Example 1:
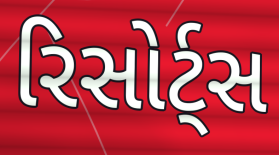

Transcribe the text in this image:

રિસોર્ટ્સ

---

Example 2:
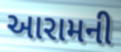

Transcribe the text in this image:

આરામની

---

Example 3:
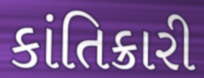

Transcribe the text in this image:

કાંતિક્રારી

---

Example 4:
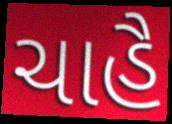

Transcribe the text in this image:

ચાહૈ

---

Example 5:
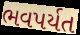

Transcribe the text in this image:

ભવપર્યત